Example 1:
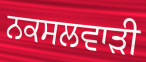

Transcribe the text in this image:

ਨਕਸਲਵਾੜੀ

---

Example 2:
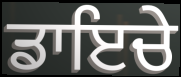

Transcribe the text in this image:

ਡਾਇਚੇ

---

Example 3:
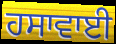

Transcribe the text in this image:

ਹਸਾਵਾਈ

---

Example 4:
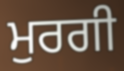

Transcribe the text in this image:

ਮੁਰਗੀ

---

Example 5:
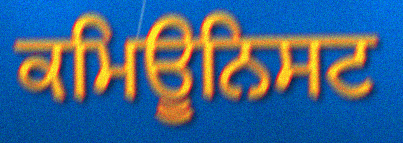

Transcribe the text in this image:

ਕਮਿਊਨਿਸਟ